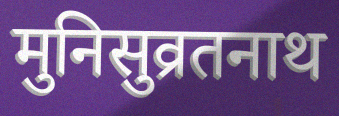
मुनिसुव्रतनाथ